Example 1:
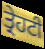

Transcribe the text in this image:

ਤ੍ਰੇਹਟੀ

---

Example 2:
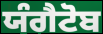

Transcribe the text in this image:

ਯੰਗੈਟੋਬ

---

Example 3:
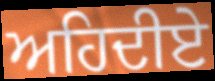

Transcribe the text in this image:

ਅਹਿਦੀਏ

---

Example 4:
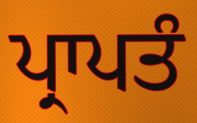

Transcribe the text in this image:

ਪ੍ਰਾਪਤੰ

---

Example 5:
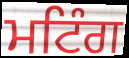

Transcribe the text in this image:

ਮਟਿੰਗ